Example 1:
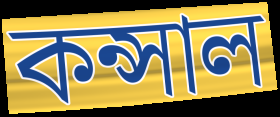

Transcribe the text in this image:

কন্সাল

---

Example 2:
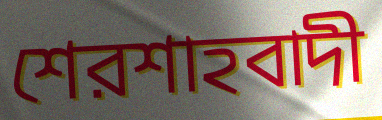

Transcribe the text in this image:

শেরশাহবাদী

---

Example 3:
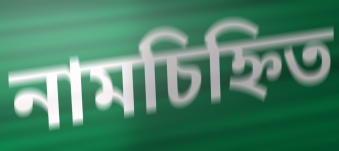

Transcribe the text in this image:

নামচিহ্নিত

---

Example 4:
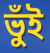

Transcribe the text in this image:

ভুঁই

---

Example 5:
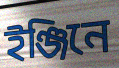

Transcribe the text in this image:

ইঞ্জিনে